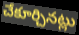
చేకూర్చినట్లు